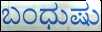
ಬಂಧುಷು